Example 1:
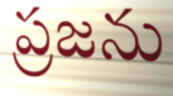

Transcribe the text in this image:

ప్రజను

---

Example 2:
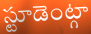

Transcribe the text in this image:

స్టూడెంట్గా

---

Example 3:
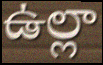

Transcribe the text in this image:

ఉల్లా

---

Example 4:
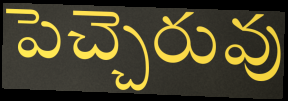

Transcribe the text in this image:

పెచ్చెరువు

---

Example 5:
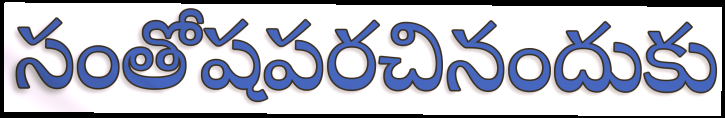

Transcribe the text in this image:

సంతోషపరచినందుకు